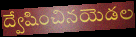
ద్వేషించినయెడల